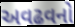
અવઢવનો